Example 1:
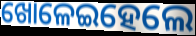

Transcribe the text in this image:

ଖୋଳେଇହେଲେ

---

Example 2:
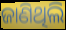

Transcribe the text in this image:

ଜାଣିଥିଲି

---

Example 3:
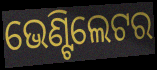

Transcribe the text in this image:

ଭେଣ୍ଟିଲେଟର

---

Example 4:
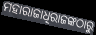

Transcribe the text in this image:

ମହାରାଜାଧିରାଜଙ୍କଠାରୁ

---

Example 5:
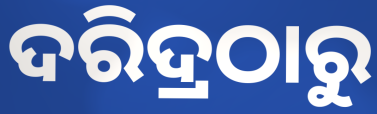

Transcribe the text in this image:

ଦରିଦ୍ରଠାରୁ